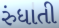
રુંધાતી